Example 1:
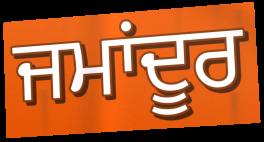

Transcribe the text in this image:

ਜਮਾਂਦੂਰ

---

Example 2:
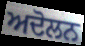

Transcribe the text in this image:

ਅਦੋਲਨ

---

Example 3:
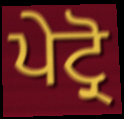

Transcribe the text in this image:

ਪੇਟ੍ਰੋ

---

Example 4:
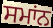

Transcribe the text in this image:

ਸਮਾਂਨ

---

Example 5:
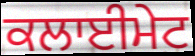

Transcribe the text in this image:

ਕਲਾਈਮੇਟ